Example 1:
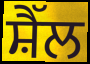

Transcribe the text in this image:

ਸ਼ੈੱਲ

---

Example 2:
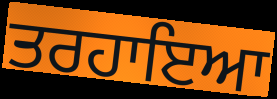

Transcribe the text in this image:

ਤਰਹਾਇਆ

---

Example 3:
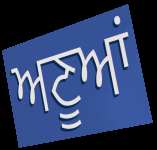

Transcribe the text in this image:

ਅਣੂਆਂ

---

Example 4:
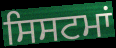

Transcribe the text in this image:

ਸਿਸਟਮਾਂ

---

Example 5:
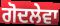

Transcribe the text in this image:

ਗੋਦਲੇਵਾ